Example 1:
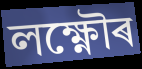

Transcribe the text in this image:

লক্ষ্ণৌৰ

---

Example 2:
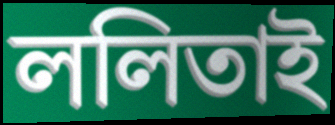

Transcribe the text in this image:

ললিতাই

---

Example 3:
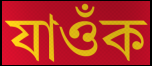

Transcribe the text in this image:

যাওঁক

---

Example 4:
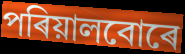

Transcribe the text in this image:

পৰিয়ালবোৰে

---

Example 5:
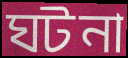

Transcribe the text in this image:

ঘটনা